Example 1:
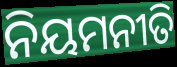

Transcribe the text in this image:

ନିୟମନୀତି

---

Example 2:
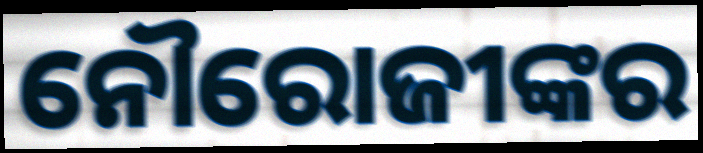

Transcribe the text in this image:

ନୌରୋଜୀଙ୍କର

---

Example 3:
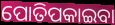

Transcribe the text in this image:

ପୋତିପକାଇବା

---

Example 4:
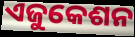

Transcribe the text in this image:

ଏଜୁକେଶନ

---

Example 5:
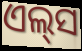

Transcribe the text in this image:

ଏଲ୍‌ସ